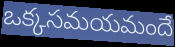
ఒక్కసమయమందే